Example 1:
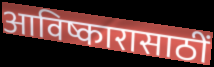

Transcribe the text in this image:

आविष्कारासाठीं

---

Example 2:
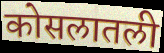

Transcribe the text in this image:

कोसलातली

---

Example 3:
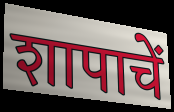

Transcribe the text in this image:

शापाचें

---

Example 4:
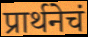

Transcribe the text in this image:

प्रार्थनेचं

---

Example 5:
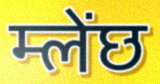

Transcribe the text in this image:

म्लेंछ